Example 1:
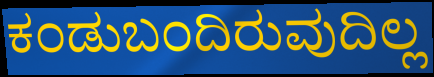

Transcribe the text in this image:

ಕಂಡುಬಂದಿರುವುದಿಲ್ಲ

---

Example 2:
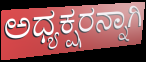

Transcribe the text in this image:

ಅಧ್ಯಕ್ಷರನ್ನಾಗಿ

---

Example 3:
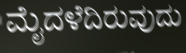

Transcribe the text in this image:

ಮೈದಳೆದಿರುವುದು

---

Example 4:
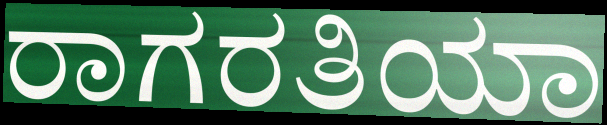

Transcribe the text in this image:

ರಾಗರತಿಯಾ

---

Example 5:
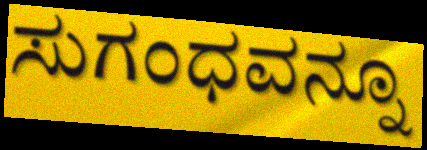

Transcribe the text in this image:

ಸುಗಂಧವನ್ನೂ